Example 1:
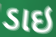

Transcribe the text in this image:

ડાઇ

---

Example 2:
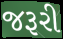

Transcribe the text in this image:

જરૂરી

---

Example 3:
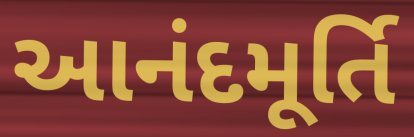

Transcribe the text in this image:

આનંદમૂર્તિ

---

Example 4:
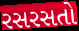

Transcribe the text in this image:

રસરસતો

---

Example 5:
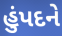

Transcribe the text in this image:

હુંપદને